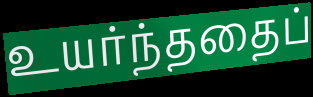
உயர்ந்ததைப்